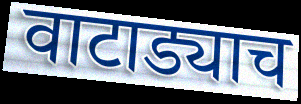
वाटाड्याच